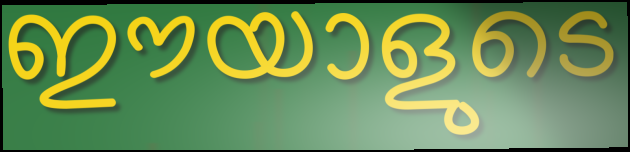
ഈയാളുടെ